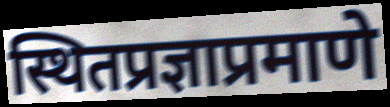
स्थितप्रज्ञाप्रमाणे